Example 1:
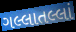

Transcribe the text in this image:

ગલ્લાતલ્લાં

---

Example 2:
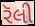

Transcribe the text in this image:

રૅલી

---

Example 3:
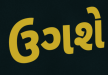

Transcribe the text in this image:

ઉગશે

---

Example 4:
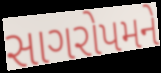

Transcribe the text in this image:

સાગરોપમને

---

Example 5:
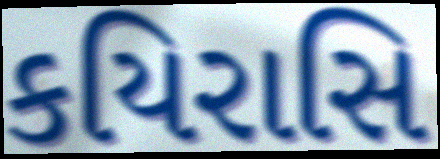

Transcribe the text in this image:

કયિરાસિ